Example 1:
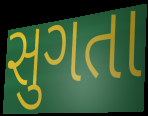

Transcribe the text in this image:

સુગતા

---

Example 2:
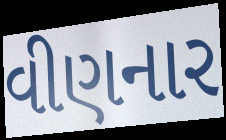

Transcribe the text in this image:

વીણનાર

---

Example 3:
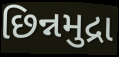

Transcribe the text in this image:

છિન્નમુદ્રા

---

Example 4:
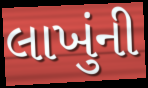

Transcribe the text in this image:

લાખુંની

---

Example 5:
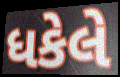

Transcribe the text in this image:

ધકેલે